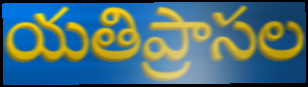
యతిప్రాసల